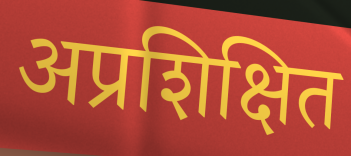
अप्रशिक्षित